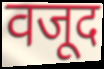
वजूद